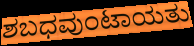
ಶಬಧವುಂಟಾಯತು